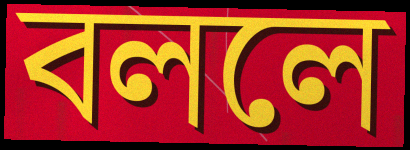
বললে